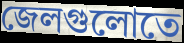
জেলগুলোতে